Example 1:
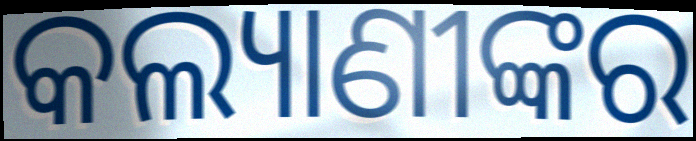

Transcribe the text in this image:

କଲ୍ୟାଣୀଙ୍କର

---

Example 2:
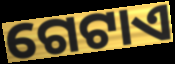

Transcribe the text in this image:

ଗେଟାଏ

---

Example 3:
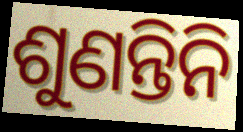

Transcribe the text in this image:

ଶୁଣନ୍ତିନି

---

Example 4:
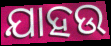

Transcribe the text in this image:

ଯାହଉ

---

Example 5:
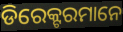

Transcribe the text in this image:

ଡିରେକ୍ଟରମାନେ